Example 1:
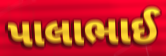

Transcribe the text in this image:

પાલાભાઈ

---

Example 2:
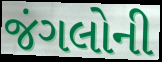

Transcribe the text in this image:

જંગલોની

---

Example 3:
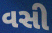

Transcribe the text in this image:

વસી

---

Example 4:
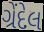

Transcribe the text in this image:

ગ્રેંદેલ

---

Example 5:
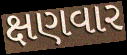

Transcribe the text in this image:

ક્ષણવાર